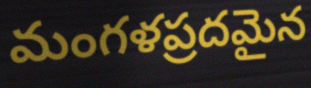
మంగళప్రదమైన